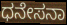
ಧನೇಸನಾ